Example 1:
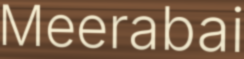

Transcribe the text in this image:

Meerabai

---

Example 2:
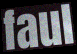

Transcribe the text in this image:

faul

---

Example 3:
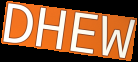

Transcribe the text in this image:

DHEW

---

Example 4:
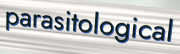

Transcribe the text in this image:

parasitological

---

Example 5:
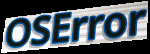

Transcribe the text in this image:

OSError